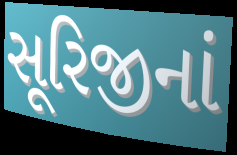
સૂરિજીનાં